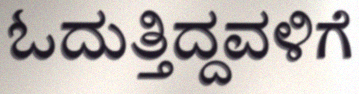
ಓದುತ್ತಿದ್ದವಳಿಗೆ